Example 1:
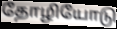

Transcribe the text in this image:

தோழியோடு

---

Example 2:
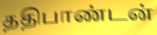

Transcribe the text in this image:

ததிபாண்டன்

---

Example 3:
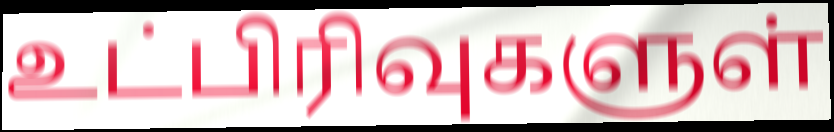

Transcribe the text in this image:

உட்பிரிவுகளுள்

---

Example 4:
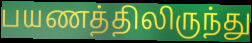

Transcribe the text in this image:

பயணத்திலிருந்து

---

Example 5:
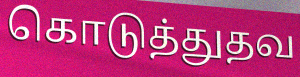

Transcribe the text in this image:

கொடுத்துதவ